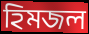
হিমজল